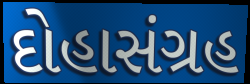
દોહાસંગ્રહ